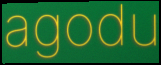
agodu